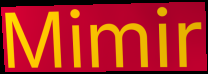
Mimir